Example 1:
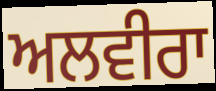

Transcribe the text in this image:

ਅਲਵੀਰਾ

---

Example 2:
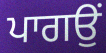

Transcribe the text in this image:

ਪਾਗਉਂ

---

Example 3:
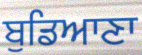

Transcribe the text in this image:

ਬੁਡਿਆਣਾ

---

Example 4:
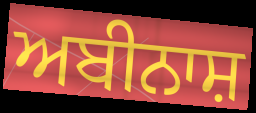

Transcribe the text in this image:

ਅਬੀਨਾਸ਼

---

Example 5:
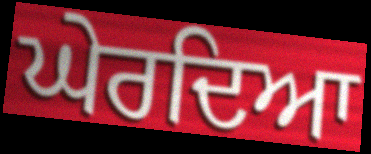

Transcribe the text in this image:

ਘੇਰਦਿਆ